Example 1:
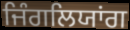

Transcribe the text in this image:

ਜਿੰਗਲਿਯਾਂਗ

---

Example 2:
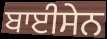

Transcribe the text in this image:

ਬਾਈਸੇਨ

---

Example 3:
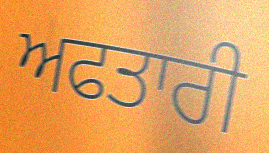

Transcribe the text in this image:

ਅਫਤਾਰੀ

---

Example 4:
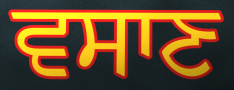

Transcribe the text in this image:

ਵਸਾਣ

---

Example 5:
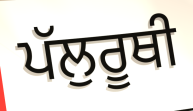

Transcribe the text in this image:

ਪੱਲੁਰੂਥੀ